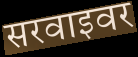
सरवाइवर